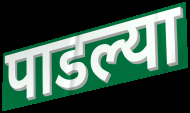
पाडल्या